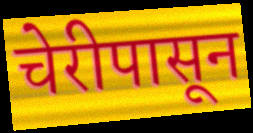
चेरीपासून